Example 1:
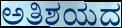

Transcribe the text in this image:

ಅತಿಶಯದ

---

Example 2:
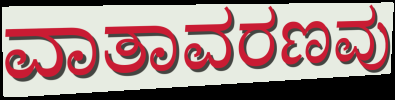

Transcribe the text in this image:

ವಾತಾವರಣವು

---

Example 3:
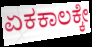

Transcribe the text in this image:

ಏಕಕಾಲಕ್ಕೇ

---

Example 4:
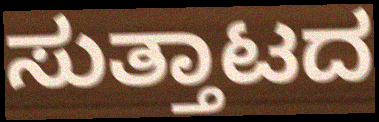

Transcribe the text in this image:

ಸುತ್ತಾಟದ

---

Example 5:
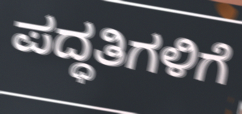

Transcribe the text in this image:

ಪದ್ಧತಿಗಳಿಗೆ